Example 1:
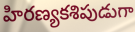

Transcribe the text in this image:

హిరణ్యకశిపుడుగా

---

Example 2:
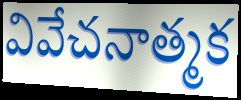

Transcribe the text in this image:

వివేచనాత్మక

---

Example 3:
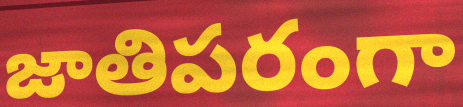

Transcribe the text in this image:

జాతిపరంగా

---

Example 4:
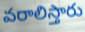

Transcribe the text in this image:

వరాలిస్తారు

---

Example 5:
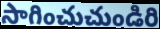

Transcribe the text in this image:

సాగించుచుండిరి